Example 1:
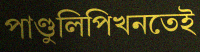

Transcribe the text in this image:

পাণ্ডুলিপিখনতেই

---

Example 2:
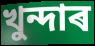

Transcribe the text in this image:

খুন্দাৰ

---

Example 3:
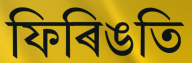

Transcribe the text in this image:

ফিৰিঙতি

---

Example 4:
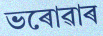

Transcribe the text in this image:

ভৰোৱাৰ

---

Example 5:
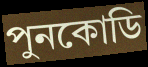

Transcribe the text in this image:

পুনকোডি